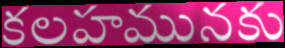
కలహమునకు